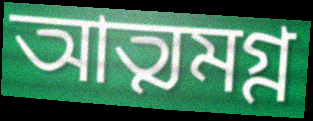
আত্মমগ্ন